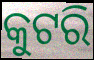
କୁଟରି